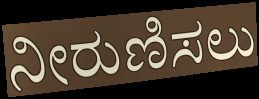
ನೀರುಣಿಸಲು